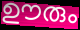
ഊരും